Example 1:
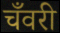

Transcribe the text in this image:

चँवरी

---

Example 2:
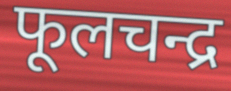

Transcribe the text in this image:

फूलचन्द्र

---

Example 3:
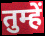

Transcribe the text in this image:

तुम्हें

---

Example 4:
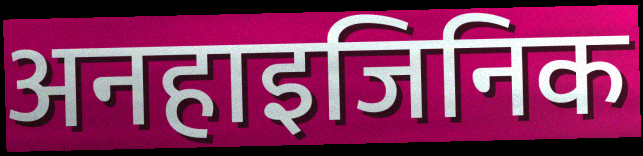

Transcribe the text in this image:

अनहाइजिनिक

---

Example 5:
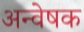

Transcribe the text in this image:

अन्वेषक